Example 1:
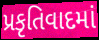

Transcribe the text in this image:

પ્રકૃતિવાદમાં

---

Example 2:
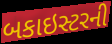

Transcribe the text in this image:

બકાઇસ્ટરની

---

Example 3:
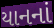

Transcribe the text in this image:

યાનનાં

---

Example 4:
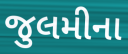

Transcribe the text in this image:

જુલમીના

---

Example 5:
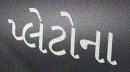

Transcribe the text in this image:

પ્લેટોના